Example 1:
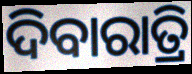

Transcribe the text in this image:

ଦିବାରାତ୍ରି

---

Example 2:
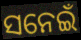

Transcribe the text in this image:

ସନେଇଁ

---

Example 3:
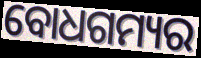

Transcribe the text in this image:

ବୋଧଗମ୍ୟର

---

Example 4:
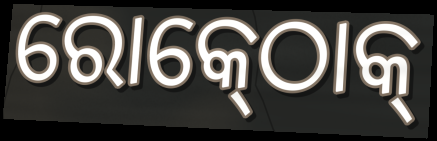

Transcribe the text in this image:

ରୋକ୍‍ଠୋକ୍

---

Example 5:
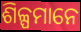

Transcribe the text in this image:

ଶିଳ୍ପମାନେ